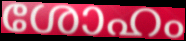
ശോഹം